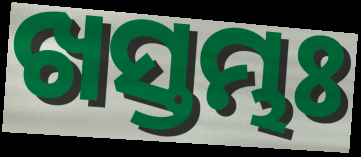
ଖସ୍ତମ୍ଭଃ